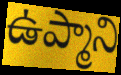
ఉప్మాని